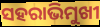
ସହରାଭିମୁଖୀ